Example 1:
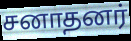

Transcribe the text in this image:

சனாதனர்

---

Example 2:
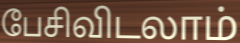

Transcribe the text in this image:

பேசிவிடலாம்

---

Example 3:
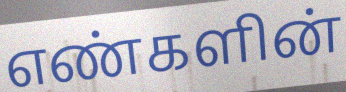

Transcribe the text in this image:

எண்களின்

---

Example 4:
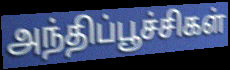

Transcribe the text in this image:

அந்திப்பூச்சிகள்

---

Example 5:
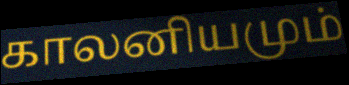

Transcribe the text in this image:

காலனியமும்